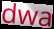
dwa